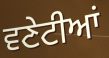
ਵਣੇਟੀਆਂ